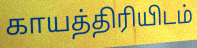
காயத்திரியிடம்